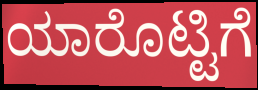
ಯಾರೊಟ್ಟಿಗೆ